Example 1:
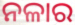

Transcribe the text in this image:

ନଳାର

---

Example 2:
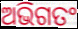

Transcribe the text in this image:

ଅଭିଗତଂ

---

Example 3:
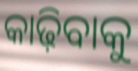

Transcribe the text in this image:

କାଢ଼ିବାକୁ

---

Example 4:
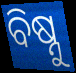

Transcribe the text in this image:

ବିଷ୍ନୁ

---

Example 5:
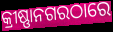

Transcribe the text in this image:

କ୍ରୀଷ୍ଣାନଗରଠାରେ